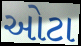
ઓટા